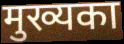
मुख्यका